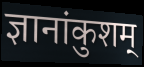
ज्ञानांकुशम्